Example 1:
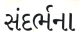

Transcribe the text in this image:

સંદર્ભના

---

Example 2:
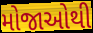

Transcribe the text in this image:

મોજાઓથી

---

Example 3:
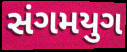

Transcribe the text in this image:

સંગમયુગ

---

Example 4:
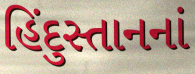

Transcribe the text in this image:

હિંદુસ્તાનનાં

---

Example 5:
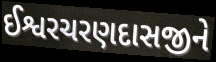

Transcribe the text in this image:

ઈશ્વરચરણદાસજીને